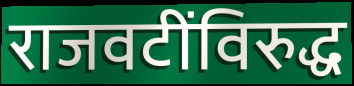
राजवटींविरुद्ध